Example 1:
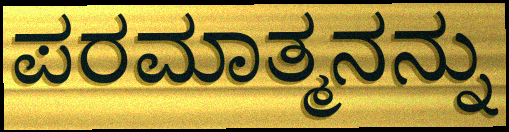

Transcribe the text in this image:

ಪರಮಾತ್ಮನನ್ನು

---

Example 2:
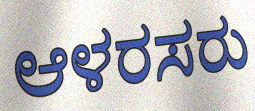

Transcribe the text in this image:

ಆಳರಸರು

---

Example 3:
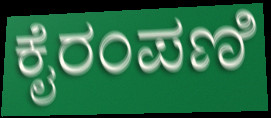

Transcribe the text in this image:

ಕೈರಂಪಣಿ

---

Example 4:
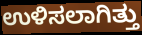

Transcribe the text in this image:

ಉಳಿಸಲಾಗಿತ್ತು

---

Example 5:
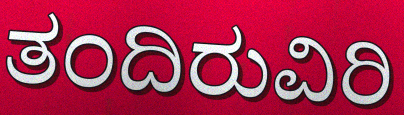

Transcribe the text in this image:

ತಂದಿರುವಿರಿ